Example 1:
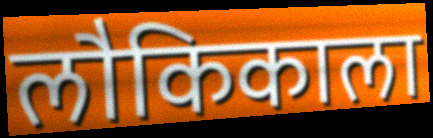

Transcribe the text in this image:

लौकिकाला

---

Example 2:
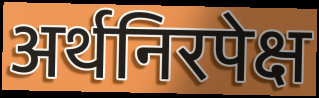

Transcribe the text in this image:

अर्थनिरपेक्ष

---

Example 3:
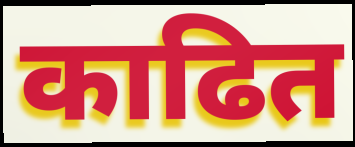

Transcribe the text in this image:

काढित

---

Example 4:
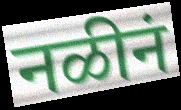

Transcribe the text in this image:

नळीनं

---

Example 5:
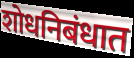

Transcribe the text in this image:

शोधनिबंधात